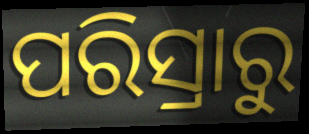
ପରିସ୍ରାରୁ